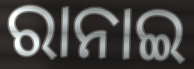
ରାନାଇ